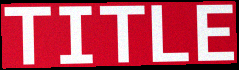
TITLE